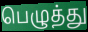
பெழுத்து